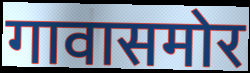
गावासमोर